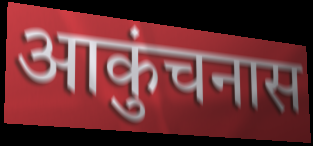
आकुंचनास